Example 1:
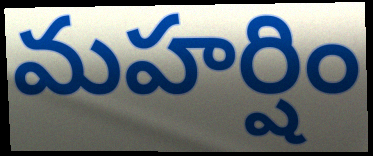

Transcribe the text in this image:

మహర్షిం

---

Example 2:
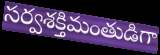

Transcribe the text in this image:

సర్వశక్తిమంతుడిగా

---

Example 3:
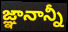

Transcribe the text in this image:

జ్ఞానాన్నీ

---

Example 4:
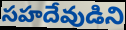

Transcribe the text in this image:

సహదేవుడిని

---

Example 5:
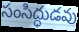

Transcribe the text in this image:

సంసిద్ధుడవు